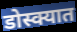
डोस्क्यात